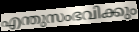
എന്തുസംഭവിക്കും